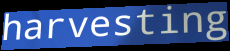
harvesting